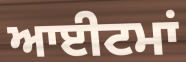
ਆਈਟਮਾਂ